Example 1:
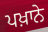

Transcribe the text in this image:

ਪਖ਼ਾਨੇ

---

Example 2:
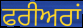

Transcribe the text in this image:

ਫਰੀਅਰਾਂ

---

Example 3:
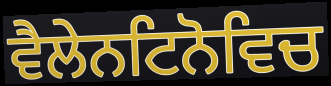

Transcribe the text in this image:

ਵੈਲੇਨਟਿਨੋਵਿਚ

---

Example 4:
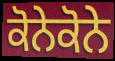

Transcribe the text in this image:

ਕੋਨੇਕੋਨੇ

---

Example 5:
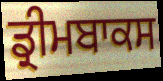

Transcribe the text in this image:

ਡ੍ਰੀਮਬਾਕਸ